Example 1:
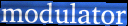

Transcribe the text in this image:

modulator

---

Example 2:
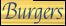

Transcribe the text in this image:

Burgers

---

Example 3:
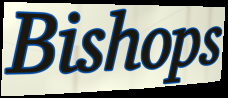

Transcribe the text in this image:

Bishops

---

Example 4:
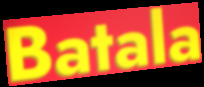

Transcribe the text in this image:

Batala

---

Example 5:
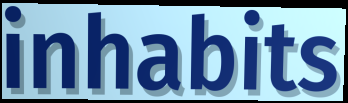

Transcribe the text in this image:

inhabits